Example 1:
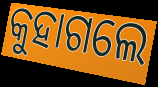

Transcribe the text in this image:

କୁହାଗଲେ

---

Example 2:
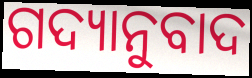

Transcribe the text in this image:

ଗଦ୍ୟାନୁବାଦ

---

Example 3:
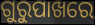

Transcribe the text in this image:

ଗୁରୁପାଖରେ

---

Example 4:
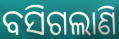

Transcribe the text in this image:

ବସିଗଲାଣି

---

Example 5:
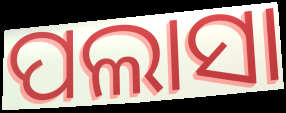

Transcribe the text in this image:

ପଲାସା